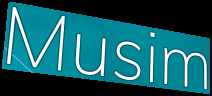
Musim